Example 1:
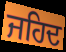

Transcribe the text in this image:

ਜਹਿਦ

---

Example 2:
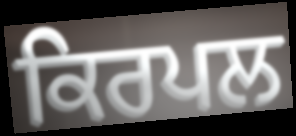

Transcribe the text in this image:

ਕਿਰਪਲ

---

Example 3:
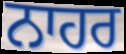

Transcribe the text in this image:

ਨਾਹਰ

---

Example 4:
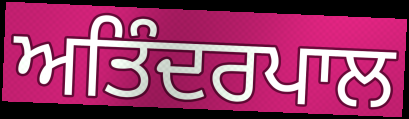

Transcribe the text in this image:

ਅਤਿੰਦਰਪਾਲ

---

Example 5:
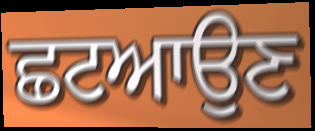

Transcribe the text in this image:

ਛਟਆਉਣ